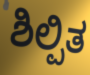
ಶಿಲ್ಪಿತ